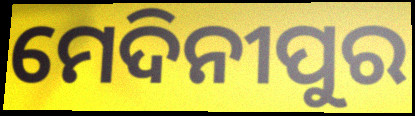
ମେଦିନୀପୁର